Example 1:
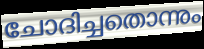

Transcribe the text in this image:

ചോദിച്ചതൊന്നും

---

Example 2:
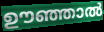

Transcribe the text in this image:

ഊഞ്ഞാൽ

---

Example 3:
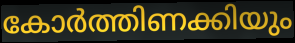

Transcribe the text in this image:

കോർത്തിണക്കിയും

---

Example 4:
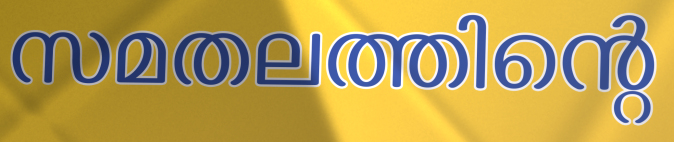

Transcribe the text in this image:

സമതലത്തിന്റെ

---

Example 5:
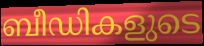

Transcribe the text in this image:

ബീഡികളുടെ